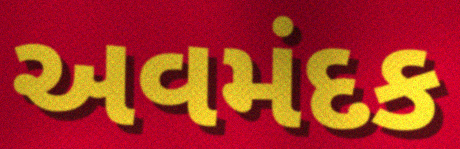
અવમંદક